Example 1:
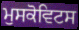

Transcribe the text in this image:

ਮੁਸਕੋਵਿਟਸ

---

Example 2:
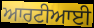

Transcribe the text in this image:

ਆਰਟੀਆਈ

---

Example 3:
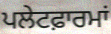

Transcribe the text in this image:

ਪਲੇਟਫ਼ਾਰਮਾਂ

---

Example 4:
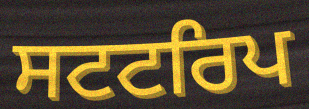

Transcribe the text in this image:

ਸਟਟਰਿਪ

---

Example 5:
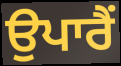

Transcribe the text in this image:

ਉਪਾਰੈਂ